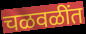
चळवळींत